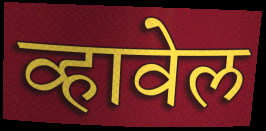
व्हावेल